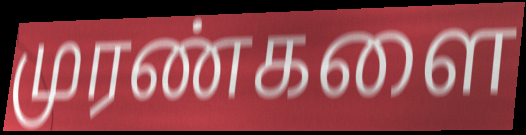
முரண்களை